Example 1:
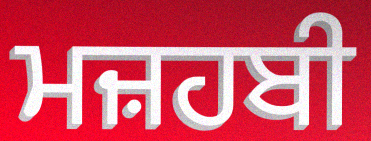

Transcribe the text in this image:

ਮਜ਼ਹਬੀ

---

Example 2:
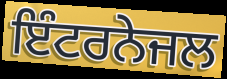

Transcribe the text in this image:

ਇੰਟਰਨੇਜਲ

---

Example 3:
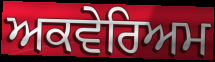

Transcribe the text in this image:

ਅਕਵੇਰਿਅਮ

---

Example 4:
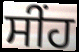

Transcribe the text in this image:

ਸੀਂਹ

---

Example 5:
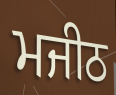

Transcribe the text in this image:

ਮਜੀਠ